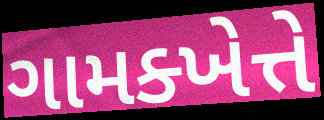
ગામક્ખેત્તે